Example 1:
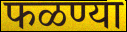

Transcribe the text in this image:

फळण्या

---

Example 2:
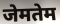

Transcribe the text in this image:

जेमतेम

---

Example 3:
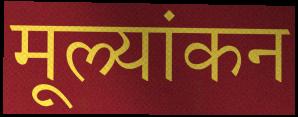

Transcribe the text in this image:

मूल्यांकन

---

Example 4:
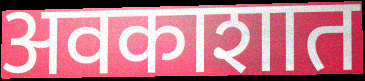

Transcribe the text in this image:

अवकाशात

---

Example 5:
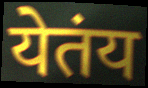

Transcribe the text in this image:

येतंय